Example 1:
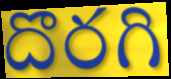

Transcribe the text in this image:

దొరగి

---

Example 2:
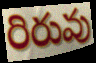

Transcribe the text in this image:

రిరువు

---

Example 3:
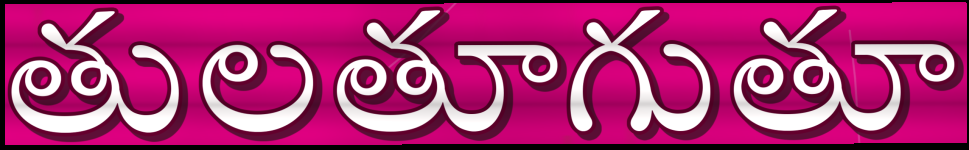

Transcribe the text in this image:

తులతూగుతూ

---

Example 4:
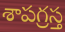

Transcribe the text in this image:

శాపగ్రస్త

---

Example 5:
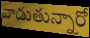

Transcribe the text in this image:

వాడుతున్నారో